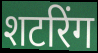
शटरिंग